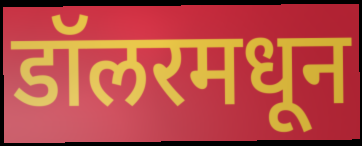
डॉलरमधून